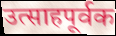
उत्साहपूर्वक